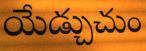
యేడ్చుచుం